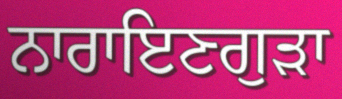
ਨਾਰਾਇਣਗੁੜਾ